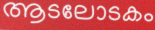
ആടലോടകം